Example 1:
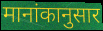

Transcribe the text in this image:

मानांकानुसार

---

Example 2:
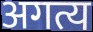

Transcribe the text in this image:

अगत्य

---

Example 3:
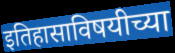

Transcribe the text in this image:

इतिहासाविषयीच्या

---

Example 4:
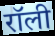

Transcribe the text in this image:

रॉली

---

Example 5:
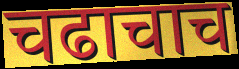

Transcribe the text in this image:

चढाचाच